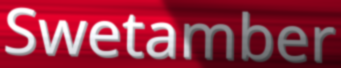
Swetamber